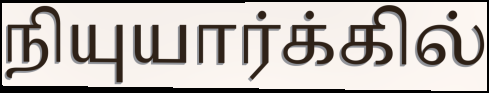
நியுயார்க்கில்